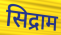
सिद्राम